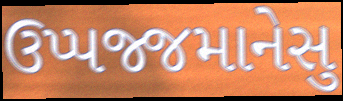
ઉપ્પજ્જમાનેસુ